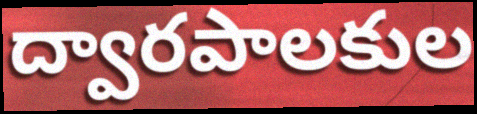
ద్వారపాలకుల